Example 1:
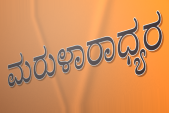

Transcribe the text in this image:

ಮರುಳಾರಾಧ್ಯರ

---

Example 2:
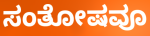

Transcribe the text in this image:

ಸಂತೋಷವೂ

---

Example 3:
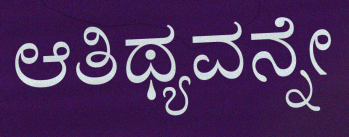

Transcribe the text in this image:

ಆತಿಥ್ಯವನ್ನೇ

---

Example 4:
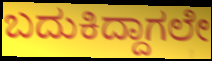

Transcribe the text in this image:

ಬದುಕಿದ್ದಾಗಲೇ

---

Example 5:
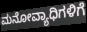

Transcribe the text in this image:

ಮನೋವ್ಯಾಧಿಗಳಿಗೆ